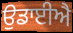
ਉਡਾਈਐ